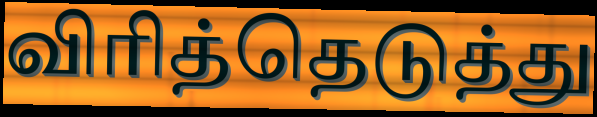
விரித்தெடுத்து